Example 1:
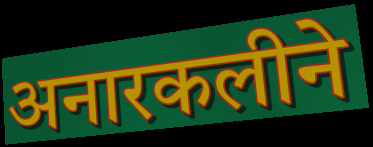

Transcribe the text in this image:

अनारकलीने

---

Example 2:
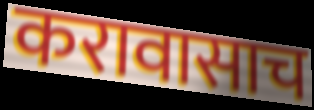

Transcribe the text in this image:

करावासाच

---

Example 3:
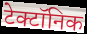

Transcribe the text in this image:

टेक्टॉनिक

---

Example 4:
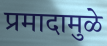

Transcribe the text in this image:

प्रमादामुळे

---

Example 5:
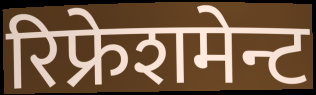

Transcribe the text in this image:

रिफ्रेशमेन्ट